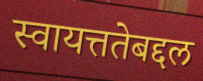
स्वायत्ततेबद्दल